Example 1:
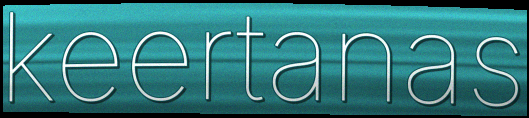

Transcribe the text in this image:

keertanas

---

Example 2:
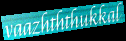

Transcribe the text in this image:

vaazhththukkal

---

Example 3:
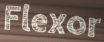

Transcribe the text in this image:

Flexor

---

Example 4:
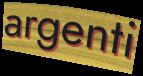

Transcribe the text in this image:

argenti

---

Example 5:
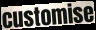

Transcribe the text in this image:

customise